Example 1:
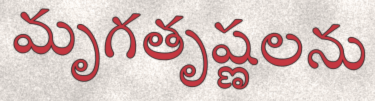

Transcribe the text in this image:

మృగతృష్ణలను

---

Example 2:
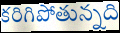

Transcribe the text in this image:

కరిగిపోతున్నది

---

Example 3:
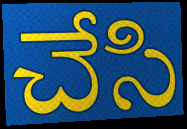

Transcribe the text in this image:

చేసి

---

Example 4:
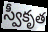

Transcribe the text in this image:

స్వీకృత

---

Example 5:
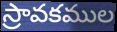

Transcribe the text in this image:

స్రావకముల